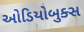
ઓડિયોબુક્સ